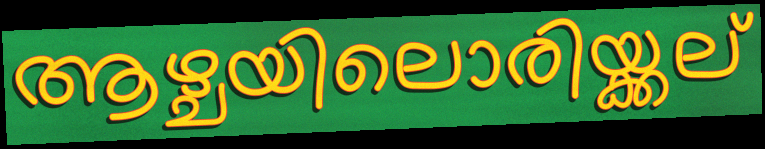
ആഴ്ചയിലൊരിയ്ക്കല്